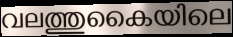
വലത്തുകൈയിലെ